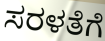
ಸರಳತೆಗೆ